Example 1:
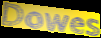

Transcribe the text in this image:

Dowes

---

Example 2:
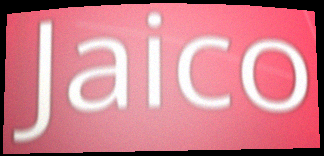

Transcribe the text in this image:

Jaico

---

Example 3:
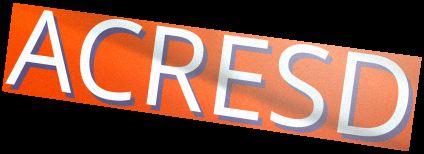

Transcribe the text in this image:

ACRESD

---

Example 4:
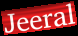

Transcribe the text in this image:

Jeeral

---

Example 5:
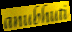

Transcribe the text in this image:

anubhuti